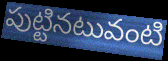
పుట్టినటువంటి